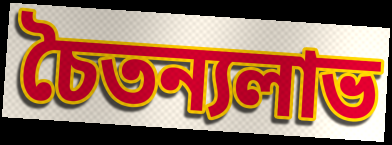
চৈতন্যলাভ